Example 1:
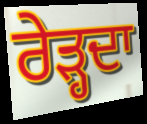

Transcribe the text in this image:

ਰੇੜ੍ਹਦਾ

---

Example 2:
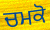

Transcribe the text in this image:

ਚਮਕੋ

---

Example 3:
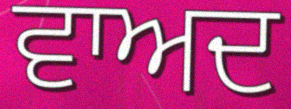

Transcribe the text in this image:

ਵਾਅਦ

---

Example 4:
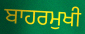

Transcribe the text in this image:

ਬਾਹਰਮੁਖੀ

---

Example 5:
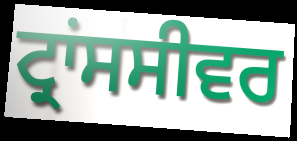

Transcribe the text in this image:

ਟ੍ਰਾਂਸਸੀਵਰ